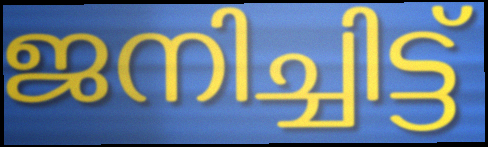
ജനിച്ചിട്ട്